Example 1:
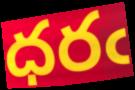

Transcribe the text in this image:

ధరఁ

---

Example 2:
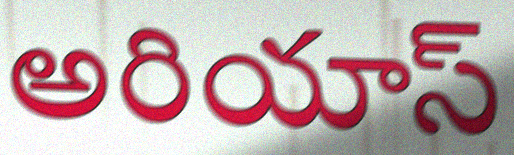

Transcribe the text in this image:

అరియాస్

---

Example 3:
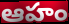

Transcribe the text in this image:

ఆహం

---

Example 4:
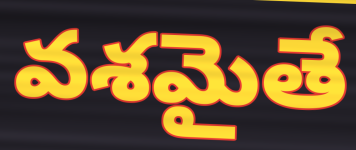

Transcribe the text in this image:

వశమైతే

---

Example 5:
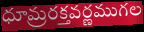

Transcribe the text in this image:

ధూమ్రరక్తవర్ణముగల